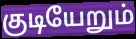
குடியேறும்